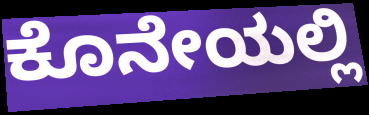
ಕೊನೇಯಲ್ಲಿ